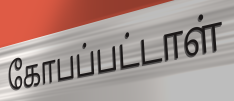
கோபப்பட்டாள்